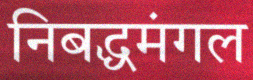
निबद्धमंगल